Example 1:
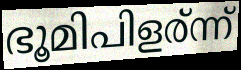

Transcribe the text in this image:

ഭൂമിപിളര്ന്ന്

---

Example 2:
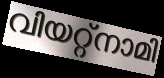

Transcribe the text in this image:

വിയറ്റ്നാമി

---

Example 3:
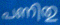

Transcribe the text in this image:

പണിതു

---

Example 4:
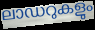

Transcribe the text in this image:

ലാഡറുകളും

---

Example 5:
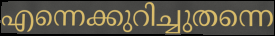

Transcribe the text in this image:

എന്നെക്കുറിച്ചുതന്നെ